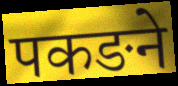
पकङने